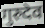
गुरुदेव